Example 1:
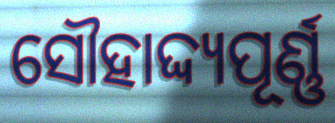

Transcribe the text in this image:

ସୌହାଦ୍ଦ୍ୟପୂର୍ଣ୍ଣ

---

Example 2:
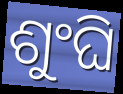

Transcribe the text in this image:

ଶୁଂଘି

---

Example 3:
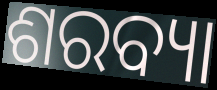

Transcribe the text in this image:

ଶରବ୍ୟା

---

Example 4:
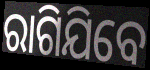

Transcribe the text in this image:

ରାଗିଯିବେ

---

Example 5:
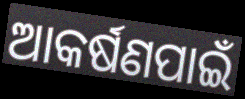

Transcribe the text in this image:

ଆକର୍ଷଣପାଇଁ